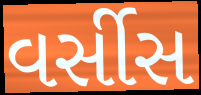
વર્સીસ